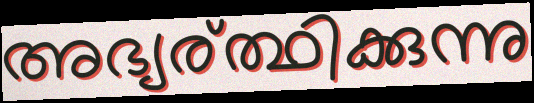
അഭ്യര്ത്ഥിക്കുന്നു